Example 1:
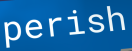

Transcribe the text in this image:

perish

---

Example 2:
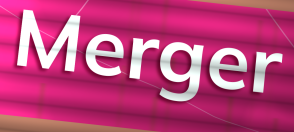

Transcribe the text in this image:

Merger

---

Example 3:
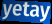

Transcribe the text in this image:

yetay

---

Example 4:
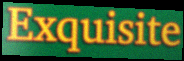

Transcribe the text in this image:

Exquisite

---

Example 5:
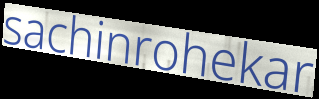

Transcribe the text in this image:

sachinrohekar